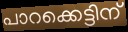
പാറക്കെട്ടിന്